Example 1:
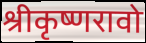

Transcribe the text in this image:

श्रीकृष्णरावो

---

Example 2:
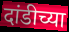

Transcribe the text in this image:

दांडीच्या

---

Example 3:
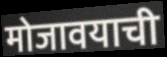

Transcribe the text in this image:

मोजावयाची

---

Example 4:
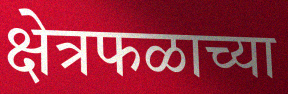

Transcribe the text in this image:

क्षेत्रफळाच्या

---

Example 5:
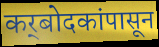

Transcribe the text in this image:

कर्बोदकांपासून